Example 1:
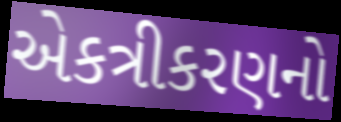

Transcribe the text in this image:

એકત્રીકરણનો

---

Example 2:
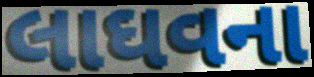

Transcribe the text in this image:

લાઘવના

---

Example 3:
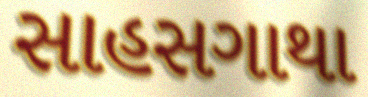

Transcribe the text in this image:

સાહસગાથા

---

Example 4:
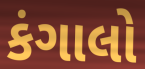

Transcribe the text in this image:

કંગાલો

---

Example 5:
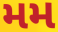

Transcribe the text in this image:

મમ